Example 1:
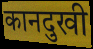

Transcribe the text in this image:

कानदुखी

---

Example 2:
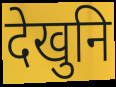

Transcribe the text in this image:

देखुनि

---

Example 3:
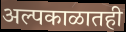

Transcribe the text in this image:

अल्पकाळातही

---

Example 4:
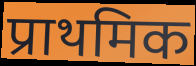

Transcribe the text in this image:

प्राथमिक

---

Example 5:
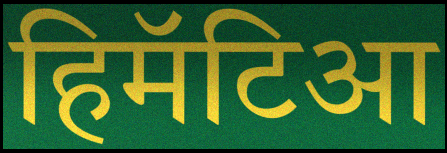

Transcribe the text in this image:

हिमॅटिआ